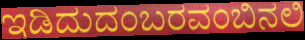
ಇಡಿದುದಂಬರವಂಬಿನಲಿ